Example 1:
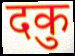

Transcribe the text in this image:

दकु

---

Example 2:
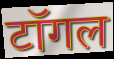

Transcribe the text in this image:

टॉगल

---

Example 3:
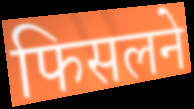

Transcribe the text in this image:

फिसलने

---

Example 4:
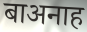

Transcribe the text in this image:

बाअनाह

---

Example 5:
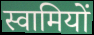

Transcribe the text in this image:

स्वामियों